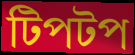
টিপটপ